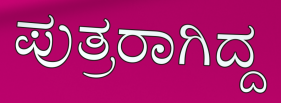
ಪುತ್ರರಾಗಿದ್ದ